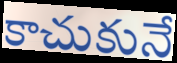
కాచుకునే